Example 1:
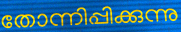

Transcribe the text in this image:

തോന്നിപ്പിക്കുന്നു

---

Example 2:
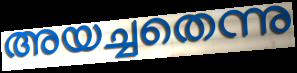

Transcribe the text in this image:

അയച്ചതെന്നു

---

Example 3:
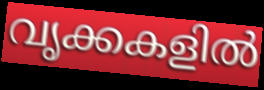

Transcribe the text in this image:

വൃക്കകളിൽ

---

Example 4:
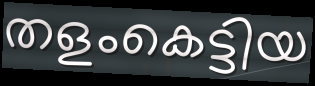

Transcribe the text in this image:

തളംകെട്ടിയ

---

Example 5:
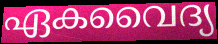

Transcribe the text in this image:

ഏകവൈദ്യ